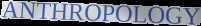
ANTHROPOLOGY